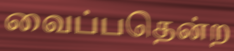
வைப்பதென்ற